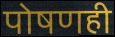
पोषणही